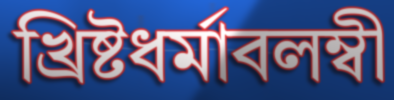
খ্রিষ্টধর্মাবলম্বী